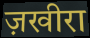
ज़खीरा